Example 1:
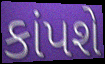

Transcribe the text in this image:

કાંપશે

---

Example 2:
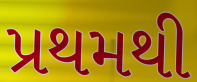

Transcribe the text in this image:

પ્રથમથી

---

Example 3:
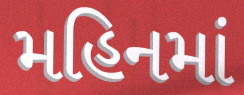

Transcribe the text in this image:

મહિનમાં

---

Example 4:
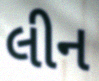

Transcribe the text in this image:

લીન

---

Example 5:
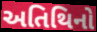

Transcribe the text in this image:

અતિથિનો